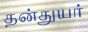
தன்துயர்